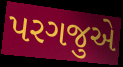
પરગજુએ